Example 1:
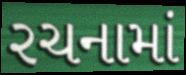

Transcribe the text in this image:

રચનામાં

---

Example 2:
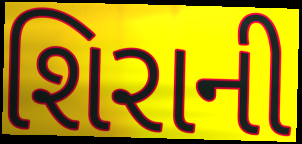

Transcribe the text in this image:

શિરાની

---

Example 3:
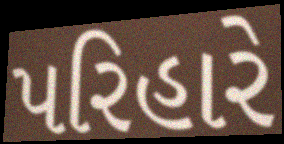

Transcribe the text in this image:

પરિહારે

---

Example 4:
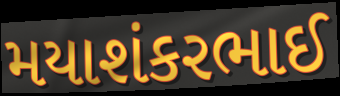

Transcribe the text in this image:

મયાશંકરભાઈ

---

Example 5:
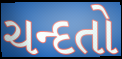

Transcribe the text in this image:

ચન્દતો